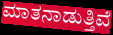
ಮಾತನಾಡುತ್ತಿವೆ